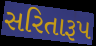
સરિતારૂપ